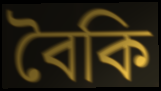
বৈকি